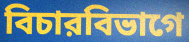
বিচারবিভাগে